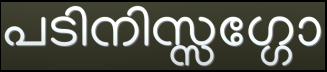
പടിനിസ്സഗ്ഗോ